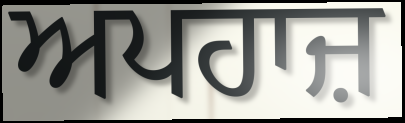
ਅਪਹਾਜ਼